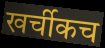
खर्चीकच